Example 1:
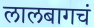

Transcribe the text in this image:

लालबागचं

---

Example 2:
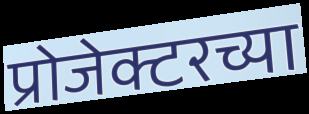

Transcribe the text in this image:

प्रोजेक्टरच्या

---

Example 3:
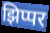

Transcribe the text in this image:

झिप्पर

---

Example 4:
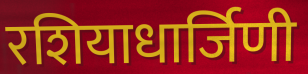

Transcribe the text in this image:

रशियाधार्जिणी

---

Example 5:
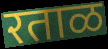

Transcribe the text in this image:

रताळ